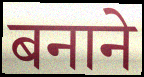
बनाने